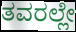
ತವರಲ್ಲೇ